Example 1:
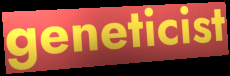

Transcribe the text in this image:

geneticist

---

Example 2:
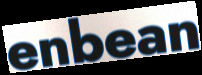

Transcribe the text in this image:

enbean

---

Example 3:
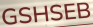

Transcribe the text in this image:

GSHSEB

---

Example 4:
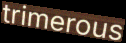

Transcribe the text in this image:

trimerous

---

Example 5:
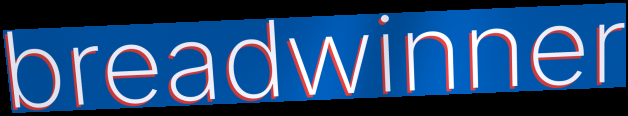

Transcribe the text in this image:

breadwinner